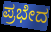
ಪ್ರಭೇದ